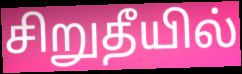
சிறுதீயில்